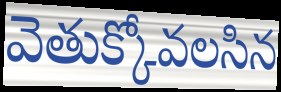
వెతుక్కోవలసిన